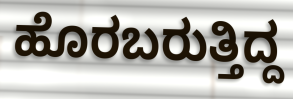
ಹೊರಬರುತ್ತಿದ್ದ